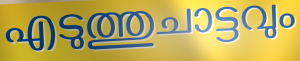
എടുത്തുചാട്ടവും